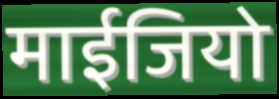
माईजियो